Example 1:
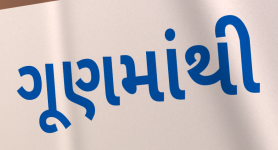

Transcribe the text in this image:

ગૂણમાંથી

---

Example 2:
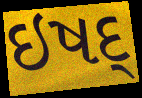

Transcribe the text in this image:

ઇષદ્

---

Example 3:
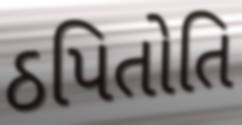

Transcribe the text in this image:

ઠપિતોતિ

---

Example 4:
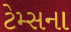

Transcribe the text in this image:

ટેમ્સના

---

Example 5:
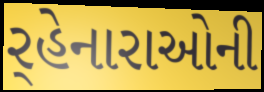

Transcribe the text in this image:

ર્‌હેનારાઓની